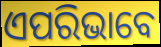
ଏପରିଭାବେ